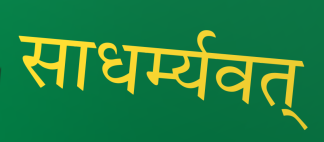
साधर्म्यवत्